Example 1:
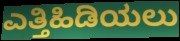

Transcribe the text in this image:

ಎತ್ತಿಹಿಡಿಯಲು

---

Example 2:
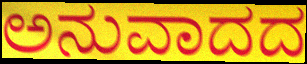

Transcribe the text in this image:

ಅನುವಾದದ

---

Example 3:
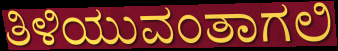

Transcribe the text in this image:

ತಿಳಿಯುವಂತಾಗಲಿ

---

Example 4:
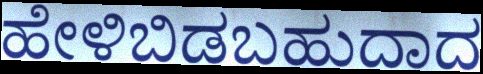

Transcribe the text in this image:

ಹೇಳಿಬಿಡಬಹುದಾದ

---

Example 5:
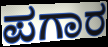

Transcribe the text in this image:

ಪಗಾರ